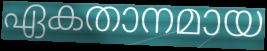
ഏകതാനമായ